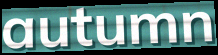
autumn